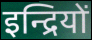
इन्द्रियों